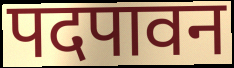
पदपावन